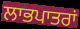
ਲਾਭਪਾਤਰਾਂ